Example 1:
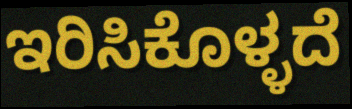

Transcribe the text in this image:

ಇರಿಸಿಕೊಳ್ಳದೆ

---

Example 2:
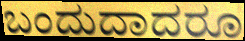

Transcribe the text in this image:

ಬಂದುದಾದರೂ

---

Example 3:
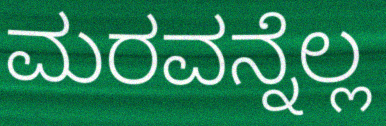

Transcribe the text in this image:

ಮರವನ್ನೆಲ್ಲ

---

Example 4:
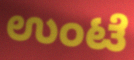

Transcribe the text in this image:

ಉಂಟೆ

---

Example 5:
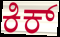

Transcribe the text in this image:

ಕಿಕ್